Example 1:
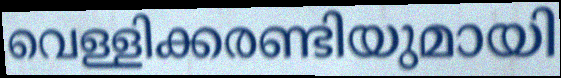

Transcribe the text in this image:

വെള്ളിക്കരണ്ടിയുമായി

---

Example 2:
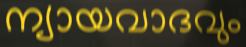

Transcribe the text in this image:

ന്യായവാദവും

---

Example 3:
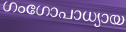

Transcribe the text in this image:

ഗംഗോപാധ്യായ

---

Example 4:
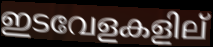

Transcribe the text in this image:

ഇടവേളകളില്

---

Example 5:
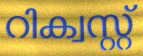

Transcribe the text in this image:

റിക്വസ്റ്റ്